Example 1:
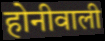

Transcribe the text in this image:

होनीवाली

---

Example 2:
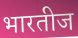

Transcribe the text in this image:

भारतीज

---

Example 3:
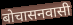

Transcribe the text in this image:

बोचासनवासी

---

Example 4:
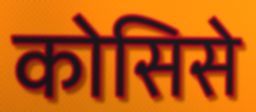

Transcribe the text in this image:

कोसिसे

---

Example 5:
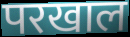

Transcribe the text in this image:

परखाल